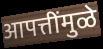
आपत्तींमुळे